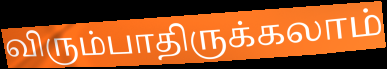
விரும்பாதிருக்கலாம்